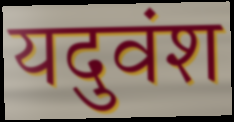
यदुवंश